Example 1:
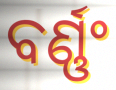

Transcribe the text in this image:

ବର୍ଣ୍ଣଂ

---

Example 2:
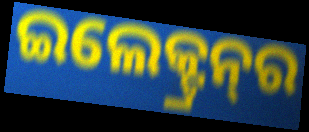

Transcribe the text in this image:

ଇଲେକ୍ଟ୍ରନ୍‌ର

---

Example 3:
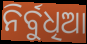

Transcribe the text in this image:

ନିର୍ବୁଧିଆ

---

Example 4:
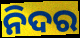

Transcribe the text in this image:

ନିଦର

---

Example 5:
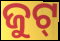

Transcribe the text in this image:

ଜୁଟ୍